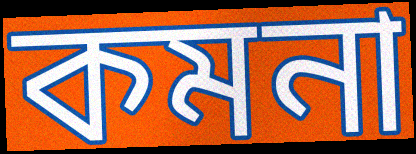
কমনা